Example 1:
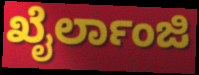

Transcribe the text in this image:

ಖೈರ್ಲಾಂಜಿ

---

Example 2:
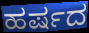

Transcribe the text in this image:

ಹರ್ಷದ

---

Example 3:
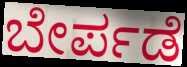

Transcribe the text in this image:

ಬೇರ್ಪಡೆ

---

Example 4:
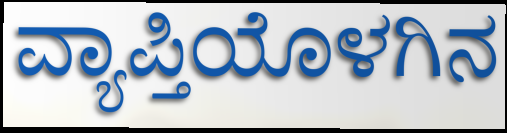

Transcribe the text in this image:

ವ್ಯಾಪ್ತಿಯೊಳಗಿನ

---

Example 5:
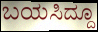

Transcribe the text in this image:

ಬಯಸಿದ್ದೂ